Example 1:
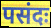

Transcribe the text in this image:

पसंदः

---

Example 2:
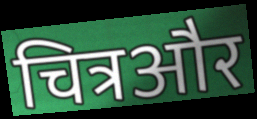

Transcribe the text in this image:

चित्रऔर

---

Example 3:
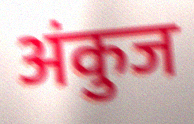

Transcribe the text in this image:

अंकुज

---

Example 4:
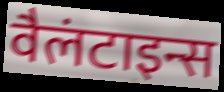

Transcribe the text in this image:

वैलंटाइन्स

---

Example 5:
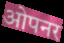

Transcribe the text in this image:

ओपनर